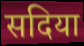
सदिया